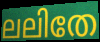
ലലിതേ